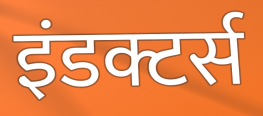
इंडक्टर्स